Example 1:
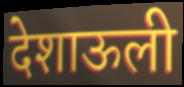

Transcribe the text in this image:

देशाऊली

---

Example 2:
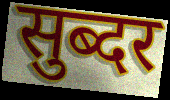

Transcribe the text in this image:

सुब्दर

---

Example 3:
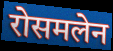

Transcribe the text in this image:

रोसमलेन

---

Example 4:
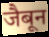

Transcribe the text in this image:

जैबून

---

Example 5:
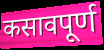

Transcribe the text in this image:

कसावपूर्ण